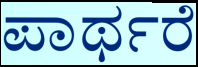
ಪಾರ್ಥರೆ